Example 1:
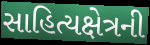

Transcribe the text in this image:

સાહિત્યક્ષેત્રની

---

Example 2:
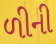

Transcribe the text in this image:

ળીની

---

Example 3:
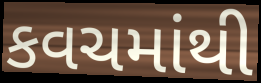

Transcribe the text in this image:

કવચમાંથી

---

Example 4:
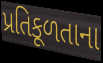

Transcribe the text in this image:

પ્રતિકૂળતાના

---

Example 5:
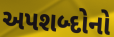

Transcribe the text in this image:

અપશબ્દોનો